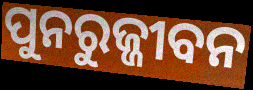
ପୁନରୁଜ୍ଜୀବନ